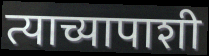
त्याच्यापाशी